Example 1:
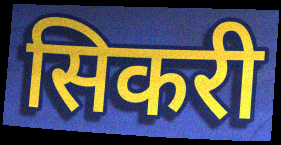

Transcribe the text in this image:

सिकरी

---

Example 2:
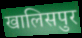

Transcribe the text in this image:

खालिसपुर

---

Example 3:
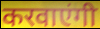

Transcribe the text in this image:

करवाएंगी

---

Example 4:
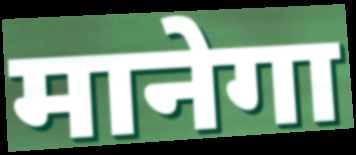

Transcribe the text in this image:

मानेगा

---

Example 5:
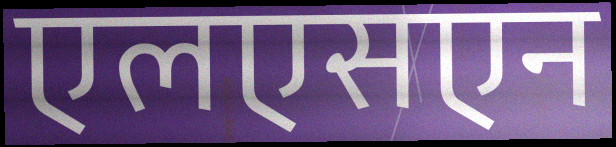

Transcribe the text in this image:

एलएसएन